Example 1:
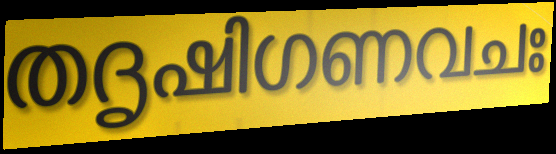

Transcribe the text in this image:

തദൃഷിഗണവചഃ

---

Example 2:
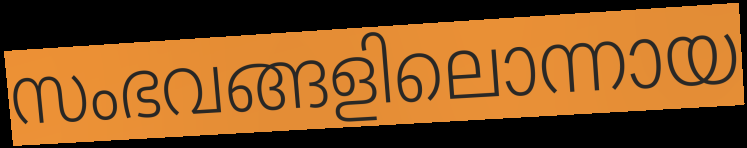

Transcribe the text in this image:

സംഭവങ്ങളിലൊന്നായ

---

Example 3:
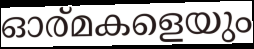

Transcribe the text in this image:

ഓര്മകളെയും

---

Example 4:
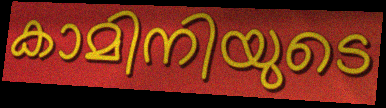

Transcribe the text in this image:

കാമിനിയുടെ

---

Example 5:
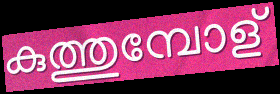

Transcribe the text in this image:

കുത്തുമ്പോള്